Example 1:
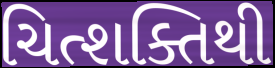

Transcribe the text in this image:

ચિત્શક્તિથી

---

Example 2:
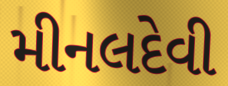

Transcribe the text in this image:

મીનલદેવી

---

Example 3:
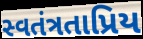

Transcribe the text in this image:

સ્વતંત્રતાપ્રિય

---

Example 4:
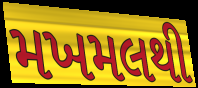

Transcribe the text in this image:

મખમલથી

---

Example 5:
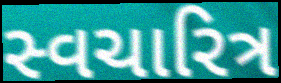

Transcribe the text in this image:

સ્વચારિત્ર